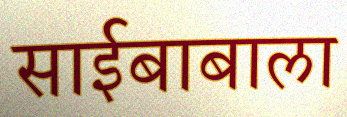
साईबाबाला